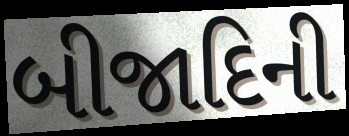
બીજાદિની